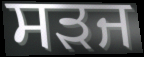
ਸੜਜ